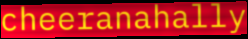
cheeranahally